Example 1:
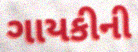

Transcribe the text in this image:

ગાયકીની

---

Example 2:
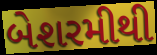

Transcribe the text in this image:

બેશરમીથી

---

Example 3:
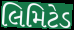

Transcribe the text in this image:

લિમિટેડ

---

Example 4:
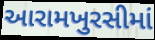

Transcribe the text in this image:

આરામખુરસીમાં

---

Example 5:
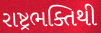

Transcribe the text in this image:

રાષ્ટ્રભક્તિથી